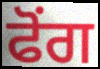
ਫੋਂਗ